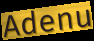
Adenu